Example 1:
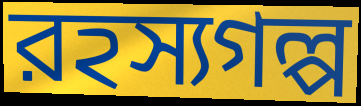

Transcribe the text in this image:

রহস্যগল্প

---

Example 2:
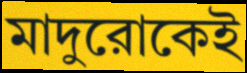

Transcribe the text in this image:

মাদুরোকেই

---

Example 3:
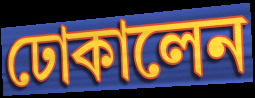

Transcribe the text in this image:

ঢোকালেন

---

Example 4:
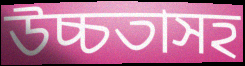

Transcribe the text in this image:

উচ্চতাসহ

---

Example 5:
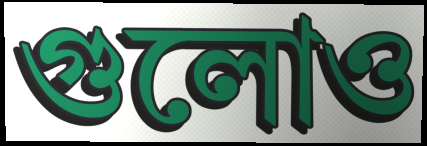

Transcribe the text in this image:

গুলোও